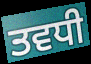
ਤਵਧੀ